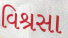
વિશ્રસા